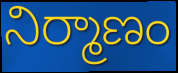
నిర్మాణం